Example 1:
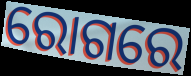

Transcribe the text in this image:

ରୋଗରେ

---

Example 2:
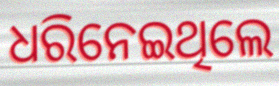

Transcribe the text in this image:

ଧରିନେଇଥିଲେ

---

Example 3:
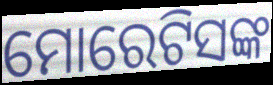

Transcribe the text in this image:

ମୋରେଟିସଙ୍କ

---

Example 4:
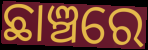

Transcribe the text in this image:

ଛାଞ୍ଚରେ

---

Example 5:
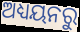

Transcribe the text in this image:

ଅଧ୍ୟୟନରୁ